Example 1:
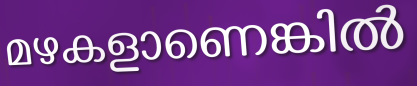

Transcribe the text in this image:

മഴകളാണെങ്കിൽ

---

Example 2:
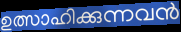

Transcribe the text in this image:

ഉത്സാഹിക്കുന്നവൻ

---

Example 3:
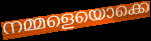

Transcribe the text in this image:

നമ്മളെയൊക്കെ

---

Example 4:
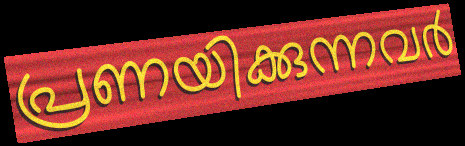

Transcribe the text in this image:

പ്രണയിക്കുന്നവർ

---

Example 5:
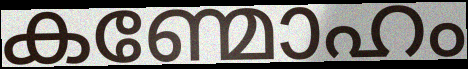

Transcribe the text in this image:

കണ്മോഹം